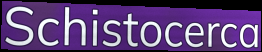
Schistocerca